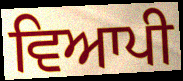
ਵਿਆਪੀ